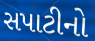
સપાટીનો